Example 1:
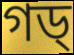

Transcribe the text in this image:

গড্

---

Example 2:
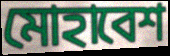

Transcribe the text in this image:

মোহাবেশ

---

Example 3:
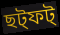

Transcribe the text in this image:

ছট্ফট্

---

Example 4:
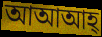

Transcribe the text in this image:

আআআহ্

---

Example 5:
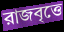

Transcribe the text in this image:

রাজবৃত্তে